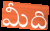
మీది